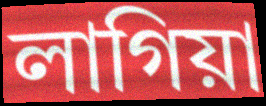
লাগিয়া